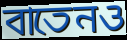
বাতেনও